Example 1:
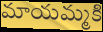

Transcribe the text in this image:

మాయమ్మకి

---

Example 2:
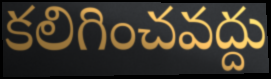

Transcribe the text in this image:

కలిగించవద్దు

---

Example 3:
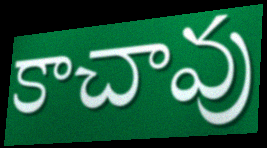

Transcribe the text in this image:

కాచావు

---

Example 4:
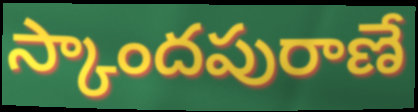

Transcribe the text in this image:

స్కాందపురాణే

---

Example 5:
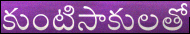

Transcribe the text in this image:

కుంటిసాకులతో